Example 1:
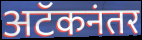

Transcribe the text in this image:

अटॅकनंतर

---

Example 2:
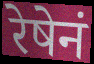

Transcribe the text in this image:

रेषेनं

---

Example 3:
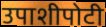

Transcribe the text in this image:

उपाशीपोटी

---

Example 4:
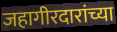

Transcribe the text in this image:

जहागीरदारांच्या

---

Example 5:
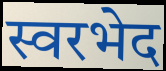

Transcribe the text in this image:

स्वरभेद